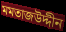
মমতাজউদ্দীন